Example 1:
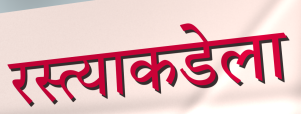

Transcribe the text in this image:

रस्त्याकडेला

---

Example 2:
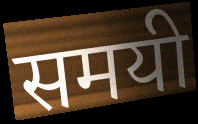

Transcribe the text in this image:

समयी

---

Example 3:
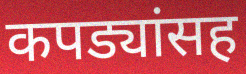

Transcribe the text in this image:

कपड्यांसह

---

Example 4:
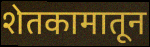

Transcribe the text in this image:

शेतकामातून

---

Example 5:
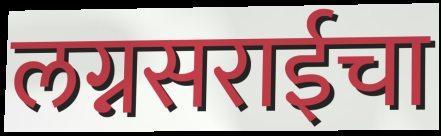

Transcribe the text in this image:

लग्नसराईचा